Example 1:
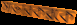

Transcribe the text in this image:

সাভারকরকে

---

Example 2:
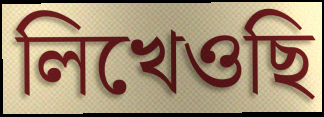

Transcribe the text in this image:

লিখেওছি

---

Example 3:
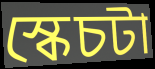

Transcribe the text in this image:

স্কেচটা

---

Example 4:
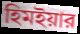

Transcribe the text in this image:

হিমইয়ার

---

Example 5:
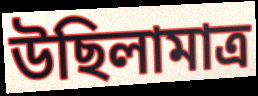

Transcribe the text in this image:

উছিলামাত্র